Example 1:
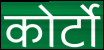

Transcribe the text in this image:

कोर्टो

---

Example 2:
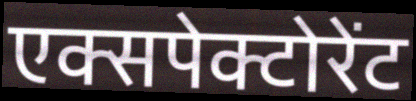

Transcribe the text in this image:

एक्सपेक्टोरेंट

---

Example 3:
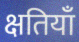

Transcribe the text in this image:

क्षतियाँ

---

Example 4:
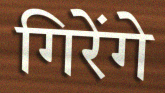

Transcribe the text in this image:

गिरेंगे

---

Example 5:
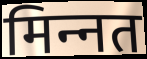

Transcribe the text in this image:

मिन्नत